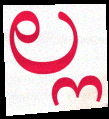
ಲ್ಲ